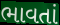
ભાવતાં